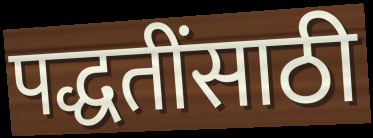
पद्धतींसाठी